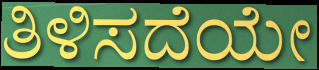
ತಿಳಿಸದೆಯೇ